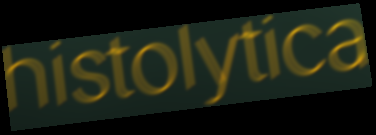
histolytica